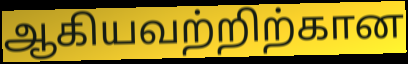
ஆகியவற்றிற்கான